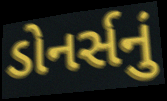
ડોનર્સનું